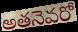
అతనెవరో